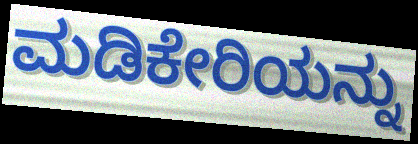
ಮಡಿಕೇರಿಯನ್ನು